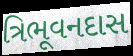
ત્રિભૂવનદાસ